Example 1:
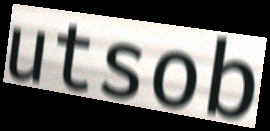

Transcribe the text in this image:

utsob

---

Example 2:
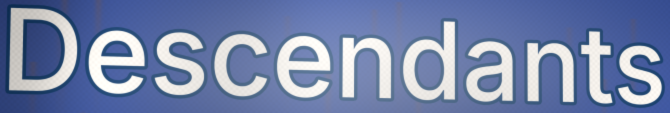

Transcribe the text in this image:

Descendants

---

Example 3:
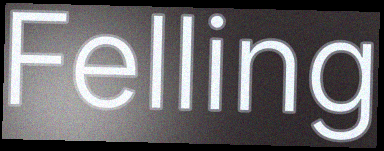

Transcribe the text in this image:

Felling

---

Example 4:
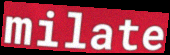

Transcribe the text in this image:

milate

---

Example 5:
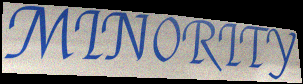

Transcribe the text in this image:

MINORITY